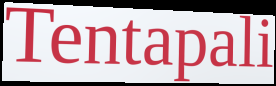
Tentapali